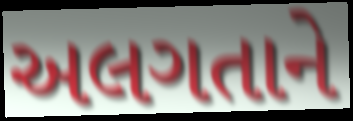
અલગતાને